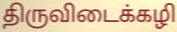
திருவிடைக்கழி